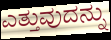
ಎತ್ತುವುದನ್ನು